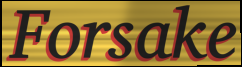
Forsake